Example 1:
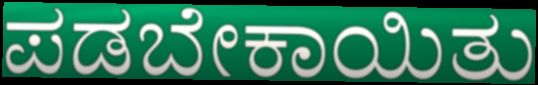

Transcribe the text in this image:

ಪಡಬೇಕಾಯಿತು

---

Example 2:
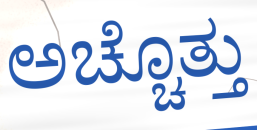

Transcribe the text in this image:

ಅಚ್ಚೊತ್ತು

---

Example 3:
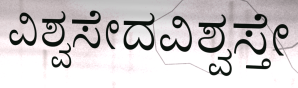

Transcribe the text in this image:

ವಿಶ್ವಸೇದವಿಶ್ವಸ್ತೇ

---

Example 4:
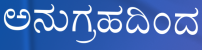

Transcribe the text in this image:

ಅನುಗ್ರಹದಿಂದ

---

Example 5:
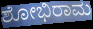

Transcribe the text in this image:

ಶೋಭಿರಾಮ